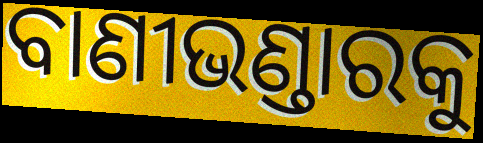
ବାଣୀଭଣ୍ଡାରକୁ